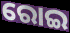
ରୋଇ